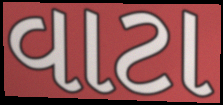
વાટા